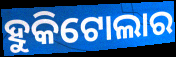
ହୁକିଟୋଲାର